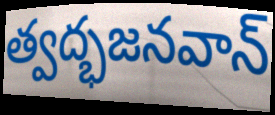
త్వద్భజనవాన్